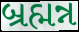
બ્રહ્મન્ન